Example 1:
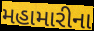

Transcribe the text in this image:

મહામારીના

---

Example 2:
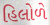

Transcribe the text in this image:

હિલોળે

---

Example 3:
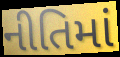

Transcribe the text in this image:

નીતિમાં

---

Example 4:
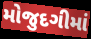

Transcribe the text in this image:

મોજુદગીમાં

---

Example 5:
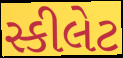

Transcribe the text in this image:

સ્કીલેટ